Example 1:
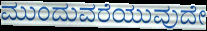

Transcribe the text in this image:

ಮುಂದುವರೆಯುವುದೇ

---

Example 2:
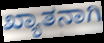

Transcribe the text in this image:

ಖ್ಯಾತನಾಗಿ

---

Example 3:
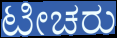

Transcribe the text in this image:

ಟೀಚರು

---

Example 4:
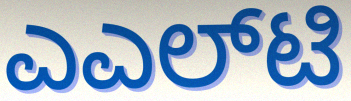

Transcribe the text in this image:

ಎಎಲ್‌ಟಿ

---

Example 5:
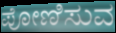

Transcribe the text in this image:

ಪೋಣಿಸುವ